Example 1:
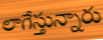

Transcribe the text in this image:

లాగేస్తున్నారు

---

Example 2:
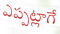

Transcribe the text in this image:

ఎప్పట్లాగే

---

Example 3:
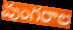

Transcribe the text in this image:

వుంగరాల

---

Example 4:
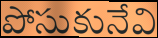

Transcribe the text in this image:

పోసుకునేవి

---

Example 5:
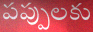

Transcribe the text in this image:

పప్పులకు